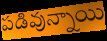
పడివున్నాయి